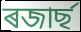
ৰজাৰ্ছ